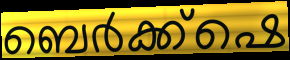
ബെർക്ക്ഷെ